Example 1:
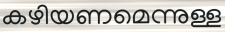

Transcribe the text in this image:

കഴിയണമെന്നുള്ള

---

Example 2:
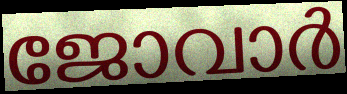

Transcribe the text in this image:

ജോവാർ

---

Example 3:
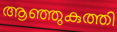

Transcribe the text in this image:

ആഞ്ഞുകുത്തി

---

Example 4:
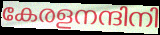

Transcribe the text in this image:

കേരളനന്ദിനി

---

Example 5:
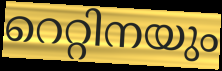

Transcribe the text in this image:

റെറ്റിനയും